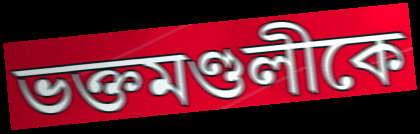
ভক্তমণ্ডলীকে